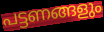
പട്ടണങ്ങളും